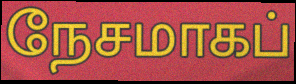
நேசமாகப்